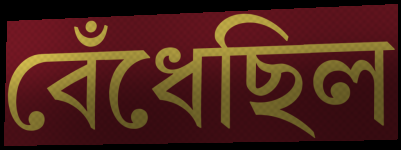
বেঁধেছিল